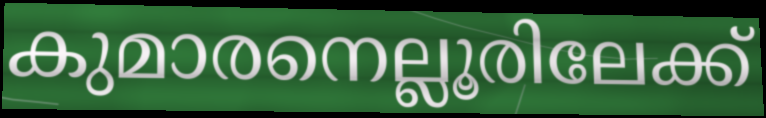
കുമാരനെല്ലൂരിലേക്ക്